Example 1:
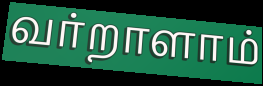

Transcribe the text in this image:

வர்றாளாம்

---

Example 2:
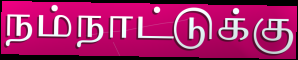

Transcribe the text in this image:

நம்நாட்டுக்கு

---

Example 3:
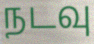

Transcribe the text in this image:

நடவு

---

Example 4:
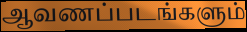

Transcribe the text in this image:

ஆவணப்படங்களும்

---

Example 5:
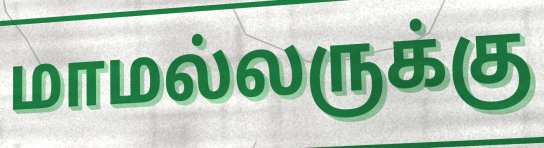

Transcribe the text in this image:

மாமல்லருக்கு